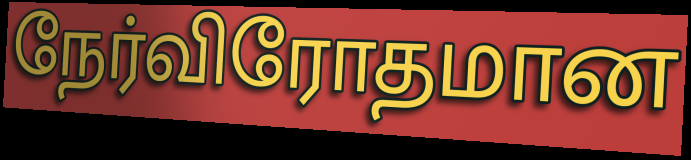
நேர்விரோதமான